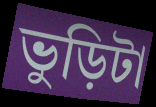
ভুড়িটা